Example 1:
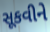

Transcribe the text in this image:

સૂકવીને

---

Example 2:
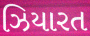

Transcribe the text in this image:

ઝિયારત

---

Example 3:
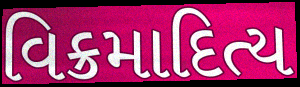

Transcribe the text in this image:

વિક્રમાદિત્‍ય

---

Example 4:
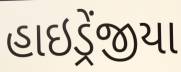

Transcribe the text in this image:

હાઇડ્રેંજીયા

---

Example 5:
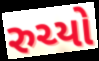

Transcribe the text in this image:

રુચ્યો